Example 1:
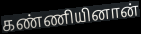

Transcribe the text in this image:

கண்ணியினான்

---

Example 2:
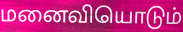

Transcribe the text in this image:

மனைவியொடும்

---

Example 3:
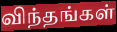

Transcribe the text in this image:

விந்தங்கள்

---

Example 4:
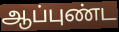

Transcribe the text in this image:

ஆப்புண்ட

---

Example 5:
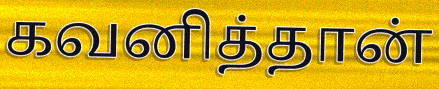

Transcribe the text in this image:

கவனித்தான்